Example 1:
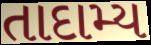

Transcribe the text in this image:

તાદામ્ય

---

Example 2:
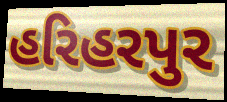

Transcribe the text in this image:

હરિહરપુર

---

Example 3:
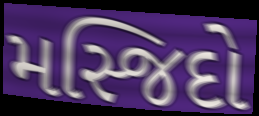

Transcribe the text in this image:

મસ્જિદો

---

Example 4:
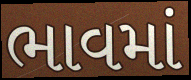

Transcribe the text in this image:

ભાવમાં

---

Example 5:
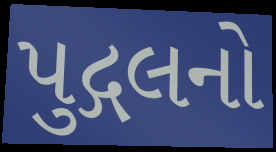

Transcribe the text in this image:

પુદ્ગલનો